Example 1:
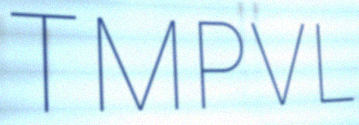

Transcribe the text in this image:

TMPVL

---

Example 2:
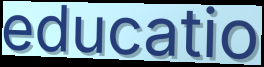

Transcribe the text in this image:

educatio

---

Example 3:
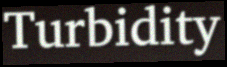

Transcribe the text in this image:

Turbidity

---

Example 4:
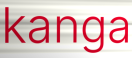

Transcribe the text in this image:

kanga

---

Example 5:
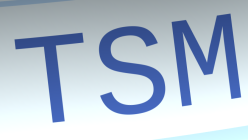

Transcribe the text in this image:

TSM